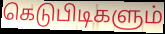
கெடுபிடிகளும்